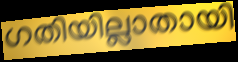
ഗതിയില്ലാതായി